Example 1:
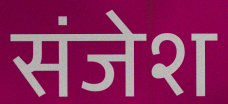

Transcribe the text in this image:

संजेश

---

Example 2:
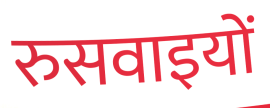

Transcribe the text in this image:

रुसवाइयों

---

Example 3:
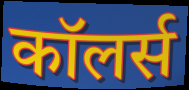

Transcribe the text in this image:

कॉलर्स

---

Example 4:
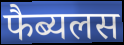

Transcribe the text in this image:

फैब्यलस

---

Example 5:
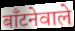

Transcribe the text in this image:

बाँटनेवाले